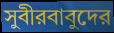
সুবীরবাবুদের